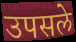
उपसले